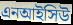
এনআইসিউ